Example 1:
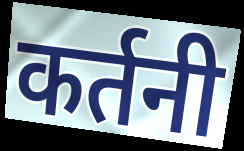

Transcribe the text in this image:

कर्तनी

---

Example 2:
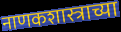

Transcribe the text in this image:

नाणकशास्त्राच्या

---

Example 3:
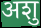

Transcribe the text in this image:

अशु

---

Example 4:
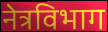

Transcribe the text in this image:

नेत्रविभाग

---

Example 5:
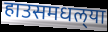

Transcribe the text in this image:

हाउसमधल्या